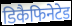
डिकैफिनेटेड